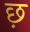
छ़